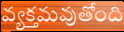
వ్యక్తమవుతోంది